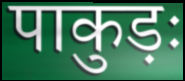
पाकुड़ः